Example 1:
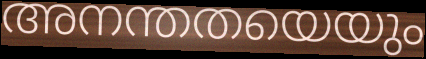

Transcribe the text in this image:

അനന്തതയെയും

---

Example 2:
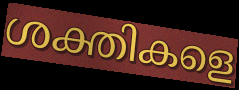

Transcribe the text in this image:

ശക്തികളെ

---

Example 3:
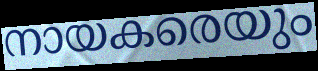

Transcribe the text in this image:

നായകരെയും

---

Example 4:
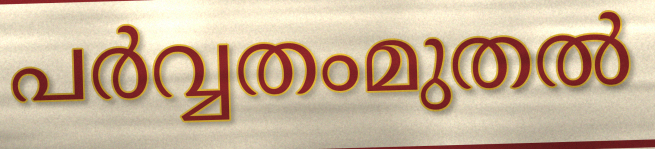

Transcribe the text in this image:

പർവ്വതംമുതൽ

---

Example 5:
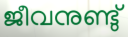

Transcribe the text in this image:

ജീവനുണ്ടു്